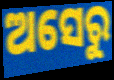
ଅସେରୁ